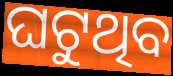
ଘଟୁଥିବ